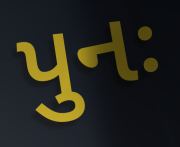
પુનઃ